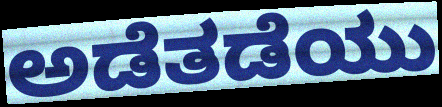
ಅಡೆತಡೆಯು